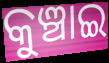
କୁଞ୍ଚାଇ